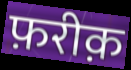
फ़रीक़